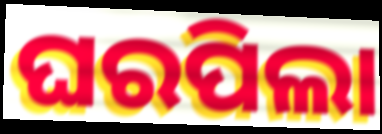
ଘରପିଲା